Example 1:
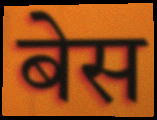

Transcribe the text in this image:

बेस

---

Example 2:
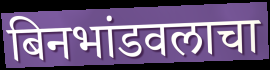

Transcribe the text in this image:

बिनभांडवलाचा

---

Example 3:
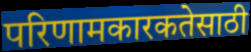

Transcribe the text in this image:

परिणामकारकतेसाठी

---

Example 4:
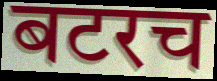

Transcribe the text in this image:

बटरच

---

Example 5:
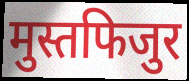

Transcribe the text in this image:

मुस्तफिजुर